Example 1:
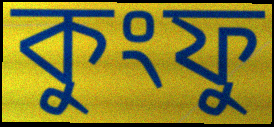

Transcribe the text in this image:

কুংফু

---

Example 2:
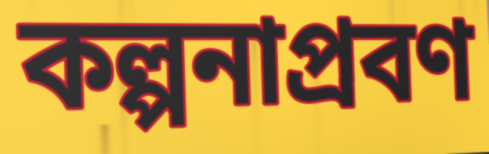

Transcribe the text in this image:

কল্পনাপ্রবণ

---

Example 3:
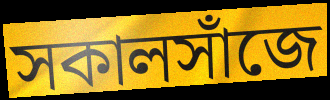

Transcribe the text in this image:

সকালসাঁজে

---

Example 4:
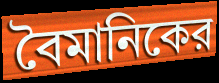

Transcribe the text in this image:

বৈমানিকের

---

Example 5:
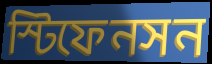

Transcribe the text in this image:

স্টিফেনসন